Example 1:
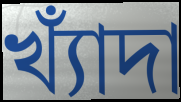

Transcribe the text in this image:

খ্যাঁদা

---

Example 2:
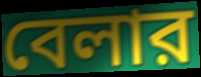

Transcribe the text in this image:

বেলার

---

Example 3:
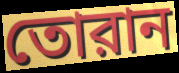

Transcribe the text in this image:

তোরান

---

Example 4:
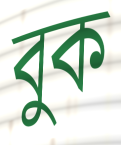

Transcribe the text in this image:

বুক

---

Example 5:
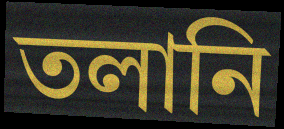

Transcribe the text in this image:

তলানি